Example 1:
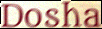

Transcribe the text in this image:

Dosha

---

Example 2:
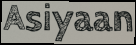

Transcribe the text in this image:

Asiyaan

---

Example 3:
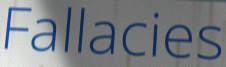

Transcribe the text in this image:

Fallacies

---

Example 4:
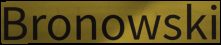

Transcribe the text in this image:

Bronowski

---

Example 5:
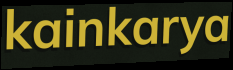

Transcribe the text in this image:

kainkarya